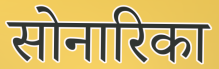
सोनारिका